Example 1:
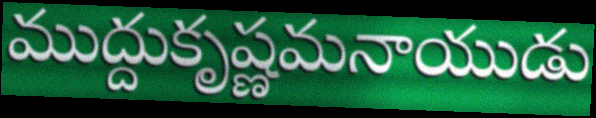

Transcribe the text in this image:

ముద్దుకృష్ణమనాయుడు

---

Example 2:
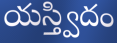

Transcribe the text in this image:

యస్త్విదం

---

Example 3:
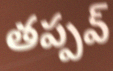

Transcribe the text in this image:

తప్పవ్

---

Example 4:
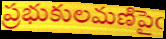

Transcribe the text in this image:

ప్రభుకులమణిపైఁ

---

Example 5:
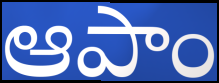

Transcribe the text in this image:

ఆపాం